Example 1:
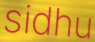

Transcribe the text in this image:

sidhu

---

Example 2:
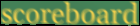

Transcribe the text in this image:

scoreboard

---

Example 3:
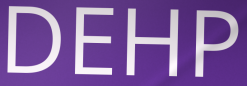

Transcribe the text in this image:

DEHP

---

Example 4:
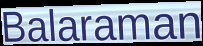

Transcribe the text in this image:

Balaraman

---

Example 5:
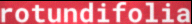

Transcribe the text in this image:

rotundifolia